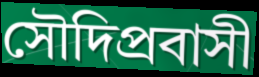
সৌদিপ্রবাসী